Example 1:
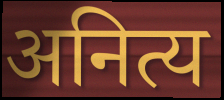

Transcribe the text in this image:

अनित्य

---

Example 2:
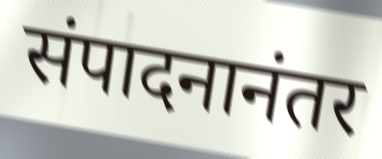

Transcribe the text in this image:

संपादनानंतर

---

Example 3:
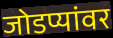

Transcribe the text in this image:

जोडप्यांवर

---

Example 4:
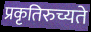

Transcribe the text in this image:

प्रकृतिरुच्यते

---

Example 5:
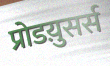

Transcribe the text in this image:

प्रोडय़ुसर्स